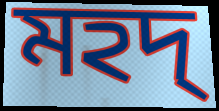
মহদ্